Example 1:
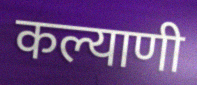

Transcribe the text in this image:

कल्याणी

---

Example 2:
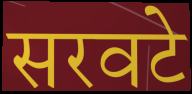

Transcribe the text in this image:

सरवटे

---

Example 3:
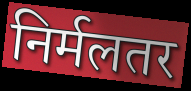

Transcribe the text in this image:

निर्मलतर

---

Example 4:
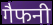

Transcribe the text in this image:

गैफनी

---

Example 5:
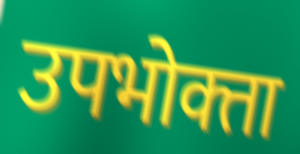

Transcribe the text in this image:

उपभोक्‍ता